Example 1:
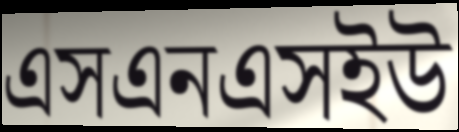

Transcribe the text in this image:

এসএনএসইউ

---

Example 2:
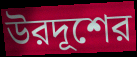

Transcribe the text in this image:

উরদূশের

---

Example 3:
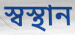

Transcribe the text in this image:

স্বস্থান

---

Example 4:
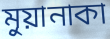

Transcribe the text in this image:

মুয়ানাকা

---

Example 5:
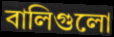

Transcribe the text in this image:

বালিগুলো